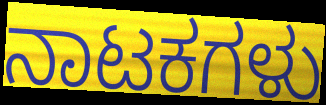
ನಾಟಕಗಳು